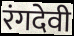
रंगदेवी